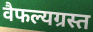
वैफल्यग्रस्त